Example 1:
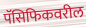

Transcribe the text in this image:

पॅसिफिकवरील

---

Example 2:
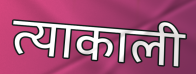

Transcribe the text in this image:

त्याकाली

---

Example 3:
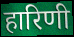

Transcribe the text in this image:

हारिणी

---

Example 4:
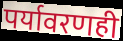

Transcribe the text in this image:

पर्यावरणही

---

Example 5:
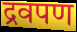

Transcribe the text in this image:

द्रवपण